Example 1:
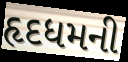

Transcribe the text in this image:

હૃદધમની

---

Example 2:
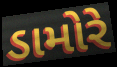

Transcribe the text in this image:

ડામોરે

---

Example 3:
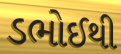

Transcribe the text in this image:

ડભોઈથી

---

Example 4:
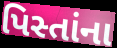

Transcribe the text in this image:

પિસ્તાંના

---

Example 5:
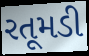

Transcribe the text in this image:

રતૂમડી